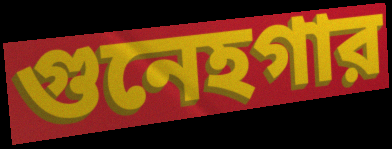
গুনেহগার